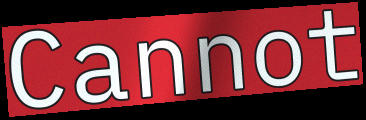
Cannot